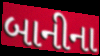
બાનીના